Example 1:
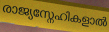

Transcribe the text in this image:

രാജ്യസ്നേഹികളാൽ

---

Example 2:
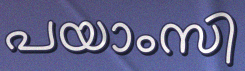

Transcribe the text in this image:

പയാംസി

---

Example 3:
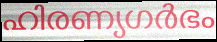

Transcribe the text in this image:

ഹിരണ്യഗർഭം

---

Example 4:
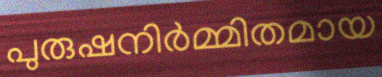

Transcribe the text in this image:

പുരുഷനിർമ്മിതമായ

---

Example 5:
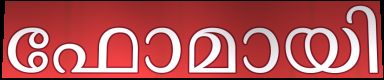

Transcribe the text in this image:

ഫോമായി